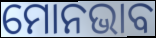
ମୋନଭାବ